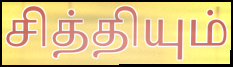
சித்தியும்